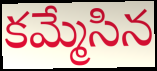
కమ్మేసిన